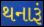
થનારૂં